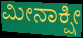
ಮೀನಾಕ್ಷೀ